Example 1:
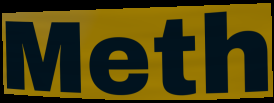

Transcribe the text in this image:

Meth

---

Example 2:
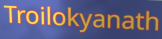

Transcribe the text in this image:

Troilokyanath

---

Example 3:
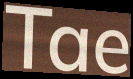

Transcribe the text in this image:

Tae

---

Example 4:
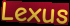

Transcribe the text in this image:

Lexus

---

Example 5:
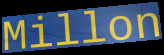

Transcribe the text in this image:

Millon